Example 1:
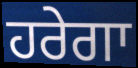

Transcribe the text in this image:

ਹਰੇਗਾ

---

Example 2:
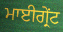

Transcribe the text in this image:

ਮਾਈਗ੍ਰੇਂਟ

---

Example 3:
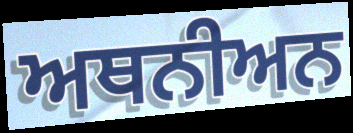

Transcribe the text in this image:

ਅਥਨੀਅਨ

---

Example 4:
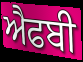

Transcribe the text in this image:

ਐਫਬੀ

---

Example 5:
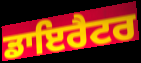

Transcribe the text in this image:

ਡਾਇਰੈਟਰ